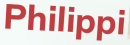
Philippi